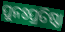
ପୁନଃପ୍ରତିଷ୍ଠା